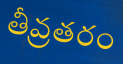
తీవ్రతరం